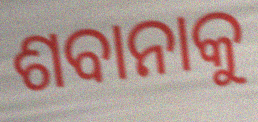
ଶବାନାକୁ